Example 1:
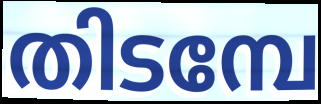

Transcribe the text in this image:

തിടമ്പേ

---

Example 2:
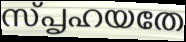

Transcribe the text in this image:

സ്പൃഹയതേ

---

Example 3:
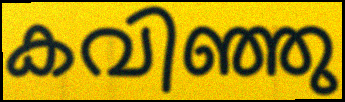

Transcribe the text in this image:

കവിഞ്ഞു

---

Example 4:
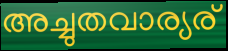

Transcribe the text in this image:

അച്ചുതവാര്യര്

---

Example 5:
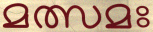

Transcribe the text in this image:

മത്സമഃ